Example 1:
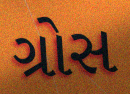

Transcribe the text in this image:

ગ્રોસ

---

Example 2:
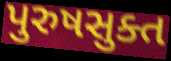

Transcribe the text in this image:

પુરુષસુક્ત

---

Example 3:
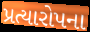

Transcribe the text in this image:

પ્રત્યારોપના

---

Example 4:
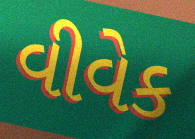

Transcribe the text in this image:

વીવેક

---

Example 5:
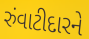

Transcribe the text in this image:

રુંવાટીદારને